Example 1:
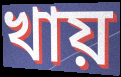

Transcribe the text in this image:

খায়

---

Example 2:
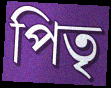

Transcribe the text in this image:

পিতৃ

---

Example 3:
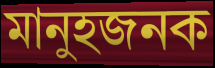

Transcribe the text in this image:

মানুহজনক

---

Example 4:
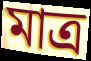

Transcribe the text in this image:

মাত্ৰ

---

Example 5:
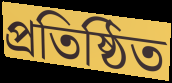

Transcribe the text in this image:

প্ৰতিষ্ঠিত